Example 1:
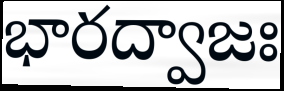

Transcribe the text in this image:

భారద్వాజః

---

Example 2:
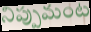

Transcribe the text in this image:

నిప్పుమంట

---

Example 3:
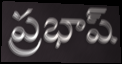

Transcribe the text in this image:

ప్రభాష్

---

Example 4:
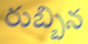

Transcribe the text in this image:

రుబ్బిన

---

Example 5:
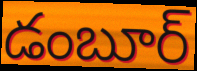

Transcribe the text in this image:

డంబూర్